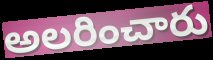
అలరించారు